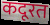
कदूरत